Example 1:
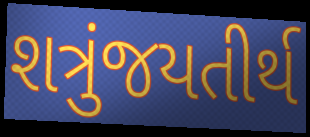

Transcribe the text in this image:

શત્રુંજયતીર્થ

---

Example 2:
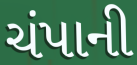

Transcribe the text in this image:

ચંપાની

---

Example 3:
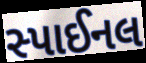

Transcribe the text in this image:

સ્પાઈનલ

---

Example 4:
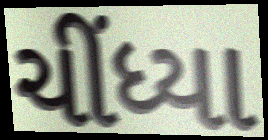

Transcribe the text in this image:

ચીંધ્યા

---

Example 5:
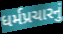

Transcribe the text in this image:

ધર્મપ્રચારનું